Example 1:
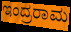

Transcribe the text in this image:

ಇಂದ್ರರಾಮ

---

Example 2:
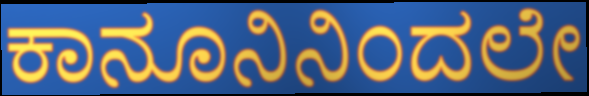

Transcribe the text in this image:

ಕಾನೂನಿನಿಂದಲೇ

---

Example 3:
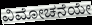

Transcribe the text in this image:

ವಿಮೋಚನೆಯೇ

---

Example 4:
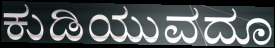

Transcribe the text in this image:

ಕುಡಿಯುವದೂ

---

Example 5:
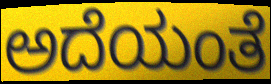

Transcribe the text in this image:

ಅದೆಯಂತೆ